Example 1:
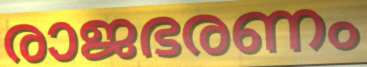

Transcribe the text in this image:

രാജഭരണം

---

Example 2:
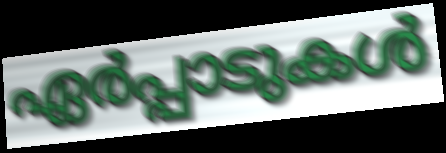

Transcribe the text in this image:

ഏർപ്പാടുകൾ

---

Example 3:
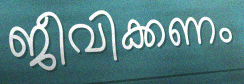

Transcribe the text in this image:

ജീവിക്കണം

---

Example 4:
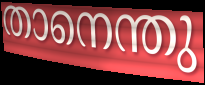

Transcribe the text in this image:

താനെന്തു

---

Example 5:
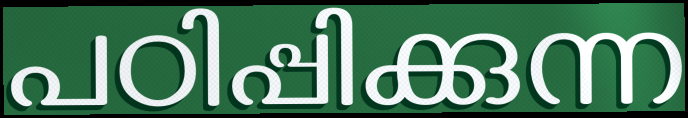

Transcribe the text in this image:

പഠിപ്പിക്കുന്ന